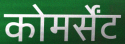
कोमर्सेंट